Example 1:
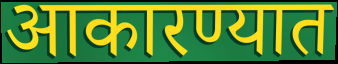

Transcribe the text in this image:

आकारण्यात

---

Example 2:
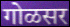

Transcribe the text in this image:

गोळसर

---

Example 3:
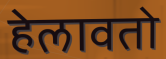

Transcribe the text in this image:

हेलावतो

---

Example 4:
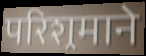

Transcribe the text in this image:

परिश्रमाने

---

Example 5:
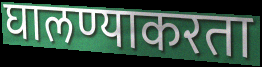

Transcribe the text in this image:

घालण्याकरता